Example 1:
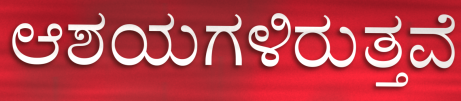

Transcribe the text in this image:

ಆಶಯಗಳಿರುತ್ತವೆ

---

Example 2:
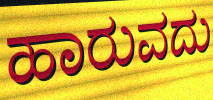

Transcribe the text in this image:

ಹಾರುವದು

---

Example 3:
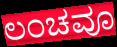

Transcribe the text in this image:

ಲಂಚವೂ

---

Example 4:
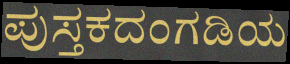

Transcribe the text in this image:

ಪುಸ್ತಕದಂಗಡಿಯ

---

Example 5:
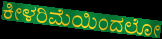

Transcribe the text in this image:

ಕೀಳರಿಮೆಯಿಂದಲೋ